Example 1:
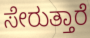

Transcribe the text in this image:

ಸೇರುತ್ತಾರೆ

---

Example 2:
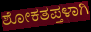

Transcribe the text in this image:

ಶೋಕತಪ್ತಳಾಗಿ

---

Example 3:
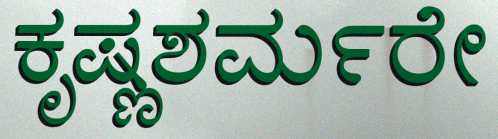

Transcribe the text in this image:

ಕೃಷ್ಣಶರ್ಮರೇ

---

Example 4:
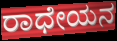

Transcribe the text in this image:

ರಾಧೇಯನ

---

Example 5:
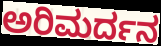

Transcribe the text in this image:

ಅರಿಮರ್ದನ